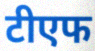
टीएफ